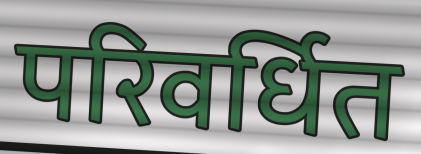
परिवर्धित